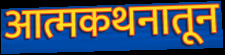
आत्मकथनातून